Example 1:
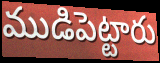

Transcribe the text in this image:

ముడిపెట్టారు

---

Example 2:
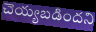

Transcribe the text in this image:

చెయ్యబడిందని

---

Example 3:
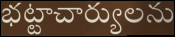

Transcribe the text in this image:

భట్టాచార్యులను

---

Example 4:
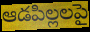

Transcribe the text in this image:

ఆడపిల్లలపై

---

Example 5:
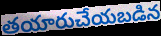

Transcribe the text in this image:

తయారుచేయబడిన